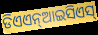
ଡିଏଏନ୍ଆଇସିଏସ୍